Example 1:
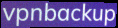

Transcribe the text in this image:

vpnbackup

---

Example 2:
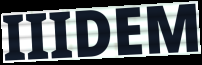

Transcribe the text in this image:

IIIDEM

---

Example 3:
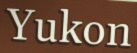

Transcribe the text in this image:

Yukon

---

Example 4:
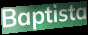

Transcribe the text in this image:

Baptista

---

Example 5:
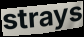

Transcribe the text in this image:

strays